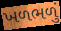
ખળભળું